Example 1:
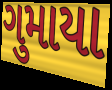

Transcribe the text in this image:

ગુમાયા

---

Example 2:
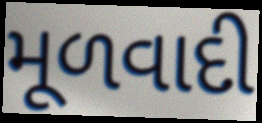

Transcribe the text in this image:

મૂળવાદી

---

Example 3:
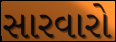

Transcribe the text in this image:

સારવારો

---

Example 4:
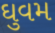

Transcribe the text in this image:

ઘુવમ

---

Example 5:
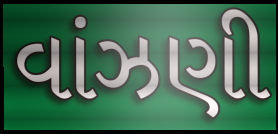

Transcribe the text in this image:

વાંઝણી